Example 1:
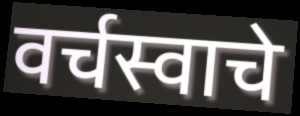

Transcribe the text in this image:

वर्चस्वाचे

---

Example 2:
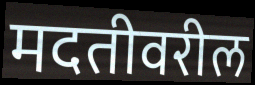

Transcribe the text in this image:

मदतीवरील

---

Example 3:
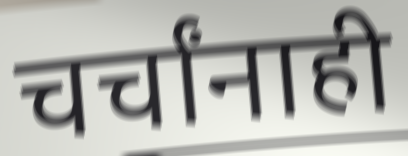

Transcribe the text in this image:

चर्चांनाही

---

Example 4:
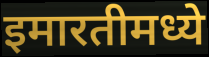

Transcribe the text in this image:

इमारतीमध्ये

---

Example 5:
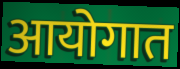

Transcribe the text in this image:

आयोगात